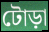
টোড়া